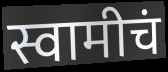
स्वामीचं